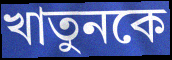
খাতুনকে